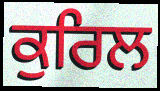
ਕੁਰਿਲ